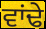
ਵਾਂਢੇ